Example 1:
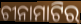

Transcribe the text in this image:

ଚୀନାମାଟିର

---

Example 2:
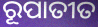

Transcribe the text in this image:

ରୂପାତୀତ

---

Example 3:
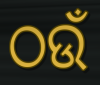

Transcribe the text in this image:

ଠଉଁ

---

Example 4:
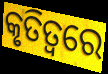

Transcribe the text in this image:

କୃତିତ୍ୱରେ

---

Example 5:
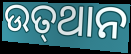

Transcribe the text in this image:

ଉତ୍‌ଥାନ